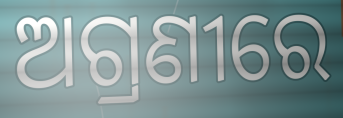
ଅଗ୍ରଣୀରେ